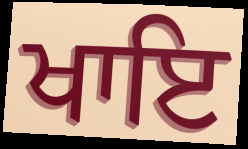
ਖਾਇ